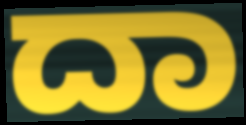
ದಾ